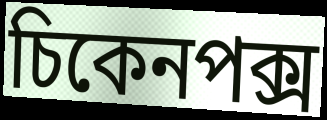
চিকেনপক্স